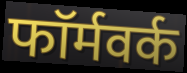
फॉर्मवर्क